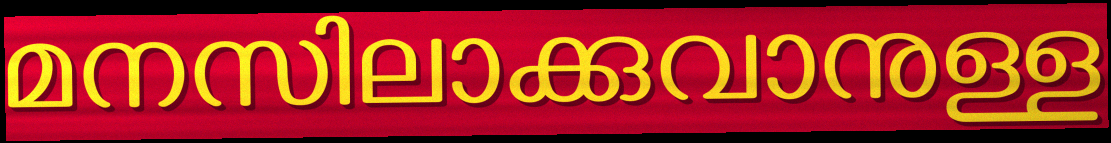
മനസിലാക്കുവാനുള്ള